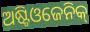
ଅଷ୍ଟିଓଜେନିକ୍